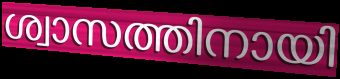
ശ്വാസത്തിനായി